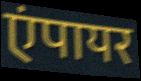
एंपायर